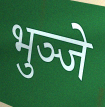
भुञ्जे